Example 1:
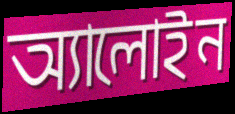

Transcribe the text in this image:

অ্যালোইন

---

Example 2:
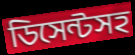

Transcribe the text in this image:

ডিসেন্টসহ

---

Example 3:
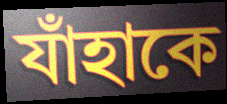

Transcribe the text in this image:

যাঁহাকে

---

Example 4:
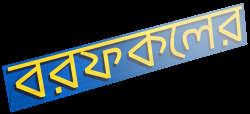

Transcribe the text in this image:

বরফকলের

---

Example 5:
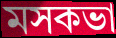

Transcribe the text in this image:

মসকভা